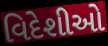
વિદેશીઓ